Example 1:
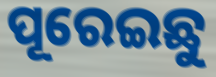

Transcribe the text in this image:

ପୂରେଇଛୁ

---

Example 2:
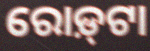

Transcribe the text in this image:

ରୋଡ଼୍‌ଟା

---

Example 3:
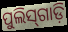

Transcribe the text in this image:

ପୁଲିସ୍‌ଗାଡ଼ି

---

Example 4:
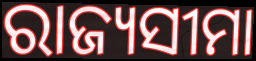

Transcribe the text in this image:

ରାଜ୍ୟସୀମା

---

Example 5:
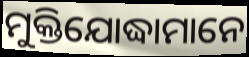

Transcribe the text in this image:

ମୁକ୍ତିଯୋଦ୍ଧାମାନେ